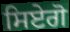
ਸਿਏਗੋ